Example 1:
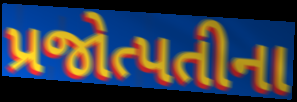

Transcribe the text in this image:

પ્રજોત્પતીના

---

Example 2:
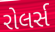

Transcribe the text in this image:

રોલર્સ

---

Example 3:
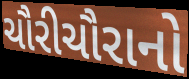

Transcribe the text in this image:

ચૌરીચૌરાનો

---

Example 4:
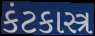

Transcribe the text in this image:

કંટકાસ્ત્ર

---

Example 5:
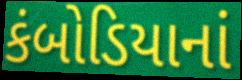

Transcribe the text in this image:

કંબોડિયાનાં